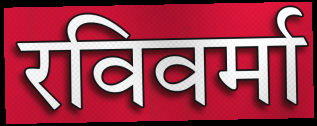
रविवर्मा